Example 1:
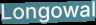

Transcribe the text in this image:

Longowal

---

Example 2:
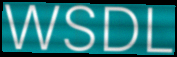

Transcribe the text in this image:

WSDL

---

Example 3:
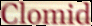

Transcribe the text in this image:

Clomid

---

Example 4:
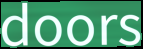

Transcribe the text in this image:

doors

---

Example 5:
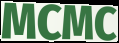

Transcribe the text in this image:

MCMC